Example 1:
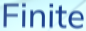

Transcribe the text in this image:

Finite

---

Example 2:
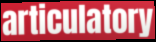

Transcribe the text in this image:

articulatory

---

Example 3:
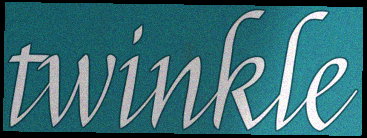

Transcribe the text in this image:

twinkle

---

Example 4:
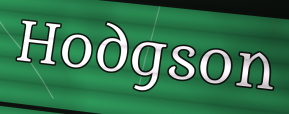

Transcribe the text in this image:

Hodgson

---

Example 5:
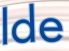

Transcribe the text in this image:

lde